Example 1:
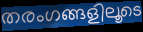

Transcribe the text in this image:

തരംഗങ്ങളിലൂടെ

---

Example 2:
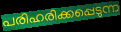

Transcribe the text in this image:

പരിഹരിക്കപ്പെടുന്ന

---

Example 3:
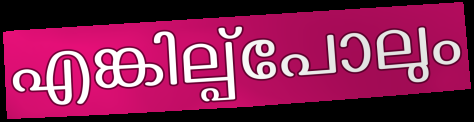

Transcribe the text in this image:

എങ്കില്പ്പോലും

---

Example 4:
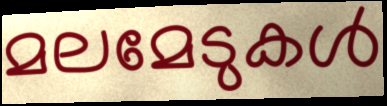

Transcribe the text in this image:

മലമേടുകൾ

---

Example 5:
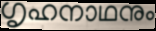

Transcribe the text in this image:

ഗൃഹനാഥനും